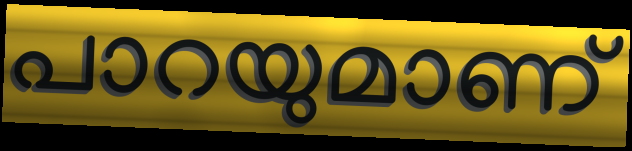
പാറയുമാണ്